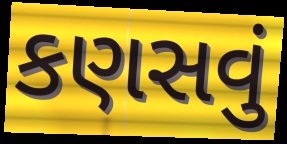
કણસવું